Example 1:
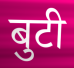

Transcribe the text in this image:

बुटी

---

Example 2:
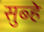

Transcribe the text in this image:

सुब्हे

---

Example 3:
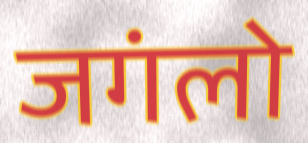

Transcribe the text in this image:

जगंलो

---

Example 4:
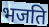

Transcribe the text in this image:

भजति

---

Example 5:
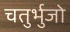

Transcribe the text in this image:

चतुर्भुजो